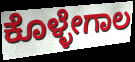
ಕೊಳ್ಳೇಗಾಲ